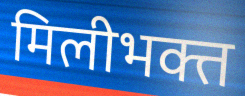
मिलीभक्त